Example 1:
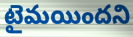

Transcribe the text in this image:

టైమయిందని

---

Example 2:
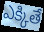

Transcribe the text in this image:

ఎక్కితే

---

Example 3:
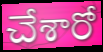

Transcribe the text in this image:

చేశారో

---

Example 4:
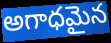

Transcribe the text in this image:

అగాధమైన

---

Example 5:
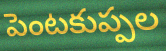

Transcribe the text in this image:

పెంటకుప్పల